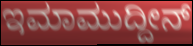
ಇಮಾಮುದ್ದೀನ್